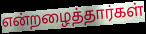
என்றழைத்தார்கள்